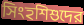
সিংহশিশুদের